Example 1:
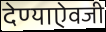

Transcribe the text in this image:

देण्याऐवजी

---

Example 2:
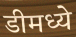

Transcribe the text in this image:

डीमध्ये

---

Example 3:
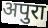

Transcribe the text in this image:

अपुरा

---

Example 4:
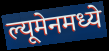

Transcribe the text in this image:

ल्यूमेनमध्ये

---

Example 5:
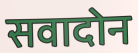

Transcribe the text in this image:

सवादोन